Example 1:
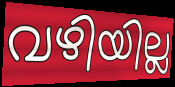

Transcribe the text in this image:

വഴിയില്ല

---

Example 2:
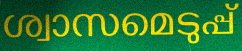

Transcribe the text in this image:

ശ്വാസമെടുപ്പ്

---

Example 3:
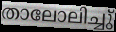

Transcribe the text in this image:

താലോലിച്ചു്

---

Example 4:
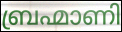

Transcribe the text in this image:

ബ്രഹ്മാണി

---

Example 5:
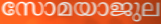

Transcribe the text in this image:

സോമയാജുല